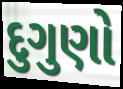
દુગુણો